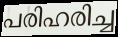
പരിഹരിച്ച